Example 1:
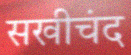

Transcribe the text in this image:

सखीचंद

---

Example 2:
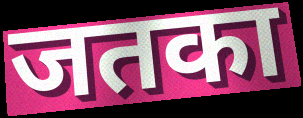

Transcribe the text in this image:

जतका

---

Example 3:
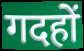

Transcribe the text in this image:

गदहों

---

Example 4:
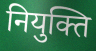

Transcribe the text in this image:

नियुक्ति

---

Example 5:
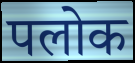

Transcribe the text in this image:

पलोक